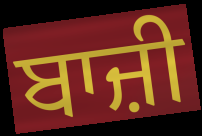
ਬਾਜ਼ੀ